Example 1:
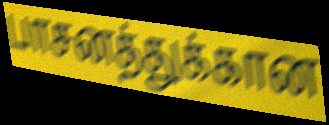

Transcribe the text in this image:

பாசனத்துக்கான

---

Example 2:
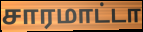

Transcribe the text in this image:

சாரமாட்டா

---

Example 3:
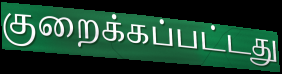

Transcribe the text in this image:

குறைக்கப்பட்டது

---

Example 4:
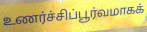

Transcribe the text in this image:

உணர்ச்சிப்பூர்வமாகக்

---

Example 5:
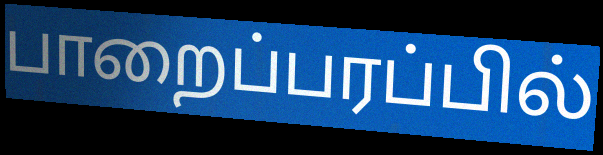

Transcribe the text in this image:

பாறைப்பரப்பில்